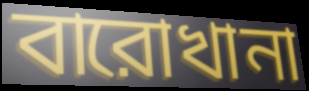
বারোখানা